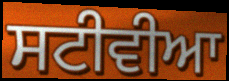
ਸਟੀਵੀਆ